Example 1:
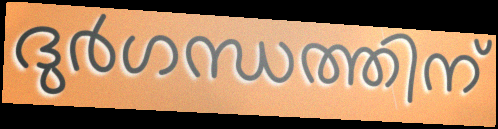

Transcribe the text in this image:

ദുർഗന്ധത്തിന്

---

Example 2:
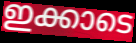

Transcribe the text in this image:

ഇക്കാടെ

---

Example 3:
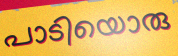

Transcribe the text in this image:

പാടിയൊരു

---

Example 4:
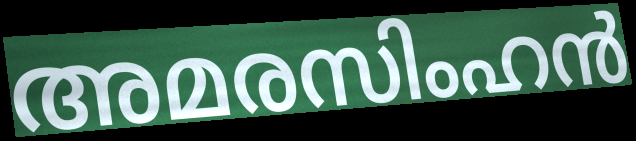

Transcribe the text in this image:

അമരസിംഹൻ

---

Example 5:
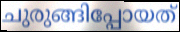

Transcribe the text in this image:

ചുരുങ്ങിപ്പോയത്